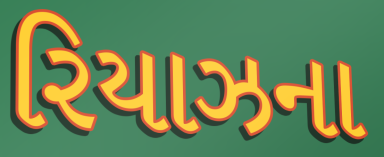
રિયાઝના